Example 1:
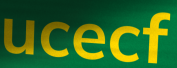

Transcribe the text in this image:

ucecf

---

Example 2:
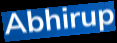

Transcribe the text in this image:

Abhirup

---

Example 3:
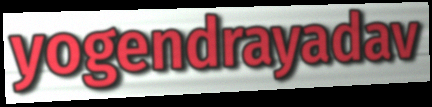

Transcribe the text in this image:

yogendrayadav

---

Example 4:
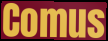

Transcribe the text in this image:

Comus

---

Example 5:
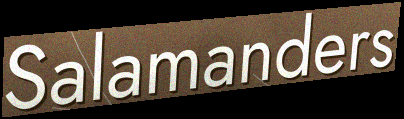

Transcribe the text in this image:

Salamanders